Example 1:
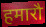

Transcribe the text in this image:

हमारौ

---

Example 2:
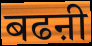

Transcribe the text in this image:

बढऩी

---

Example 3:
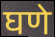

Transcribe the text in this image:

घणे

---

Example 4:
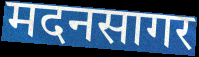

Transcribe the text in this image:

मदनसागर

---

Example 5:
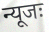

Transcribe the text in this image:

न्यूजः